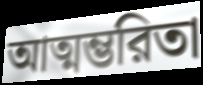
আত্মম্ভরিতা